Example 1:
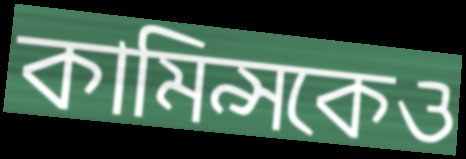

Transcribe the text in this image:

কামিন্সকেও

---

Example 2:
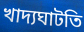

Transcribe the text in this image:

খাদ্যঘাটতি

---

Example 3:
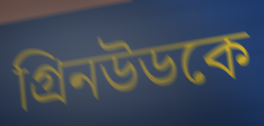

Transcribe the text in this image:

গ্রিনউডকে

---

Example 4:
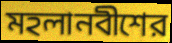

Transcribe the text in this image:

মহলানবীশের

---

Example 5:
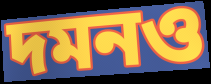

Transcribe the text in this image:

দমনও